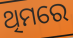
ଥିମରେ